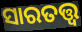
ସାରତତ୍ତ୍ୱ